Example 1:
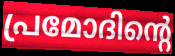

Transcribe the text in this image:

പ്രമോദിന്റെ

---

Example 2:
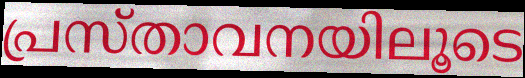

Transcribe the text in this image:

പ്രസ്താവനയിലൂടെ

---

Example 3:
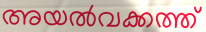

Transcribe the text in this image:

അയൽവക്കത്ത്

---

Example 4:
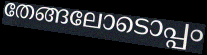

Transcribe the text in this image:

തേങ്ങലോടൊപ്പം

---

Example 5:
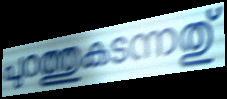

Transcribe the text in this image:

പുറത്തുകടന്നതു്